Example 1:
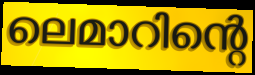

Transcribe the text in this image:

ലെമാറിന്റെ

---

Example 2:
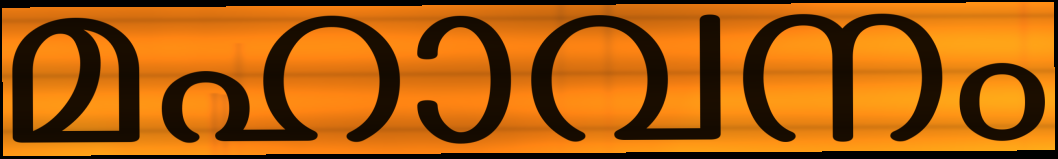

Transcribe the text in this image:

മഹാവനം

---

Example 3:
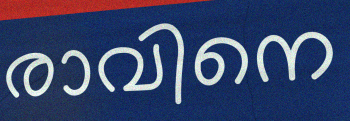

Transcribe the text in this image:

രാവിനെ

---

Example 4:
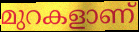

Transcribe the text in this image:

മുറകളാണ്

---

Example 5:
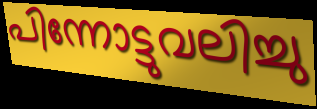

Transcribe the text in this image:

പിന്നോട്ടുവലിച്ചു